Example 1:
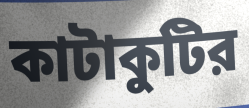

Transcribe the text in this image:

কাটাকুটির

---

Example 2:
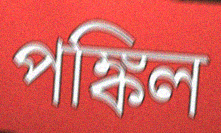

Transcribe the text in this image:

পঙ্কিল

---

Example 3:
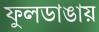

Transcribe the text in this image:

ফুলডাঙায়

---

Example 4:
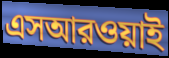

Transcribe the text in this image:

এসআরওয়াই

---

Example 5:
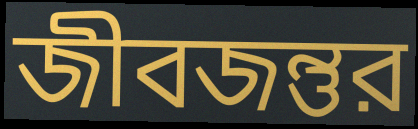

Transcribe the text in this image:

জীবজন্তুর